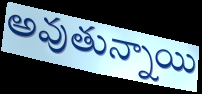
అవుతున్నాయి